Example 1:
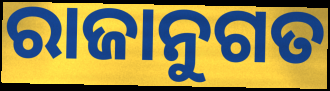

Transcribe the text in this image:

ରାଜାନୁଗତ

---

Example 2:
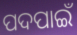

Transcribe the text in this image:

ପଦପାଇଁ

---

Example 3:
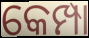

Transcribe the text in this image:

କେମ୍ପା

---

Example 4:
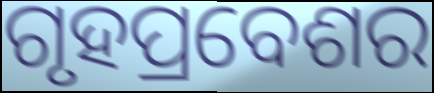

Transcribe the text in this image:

ଗୃହପ୍ରବେଶର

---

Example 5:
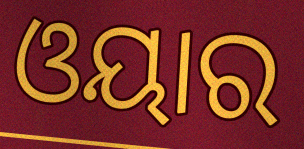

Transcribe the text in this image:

ଓୟାର